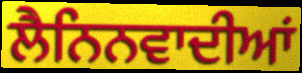
ਲੈਨਿਨਵਾਦੀਆਂ